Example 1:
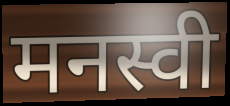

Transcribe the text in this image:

मनस्वी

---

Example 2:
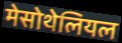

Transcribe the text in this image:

मेसोथेलियल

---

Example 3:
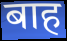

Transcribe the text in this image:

बाह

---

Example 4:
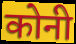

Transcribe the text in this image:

कोनी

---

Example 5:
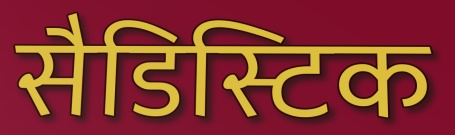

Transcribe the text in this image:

सैडिस्टिक